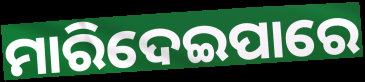
ମାରିଦେଇପାରେ